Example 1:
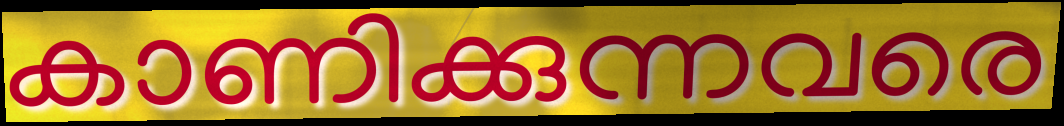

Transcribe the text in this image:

കാണിക്കുന്നവരെ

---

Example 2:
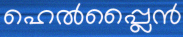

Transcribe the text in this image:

ഹെൽപ്പ്ലൈൻ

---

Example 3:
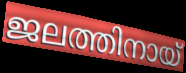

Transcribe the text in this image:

ജലത്തിനായ്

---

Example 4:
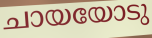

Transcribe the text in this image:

ചായയോടു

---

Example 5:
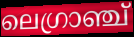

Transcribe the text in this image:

ലെഗ്രാഞ്ച്